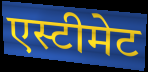
एस्टीमेट